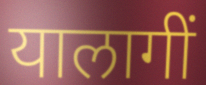
यालागीं